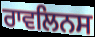
ਰਾਵਲਿਨਸ